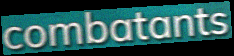
combatants